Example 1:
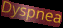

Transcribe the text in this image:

Dyspnea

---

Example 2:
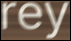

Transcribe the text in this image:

rey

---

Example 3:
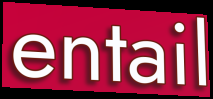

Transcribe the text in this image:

entail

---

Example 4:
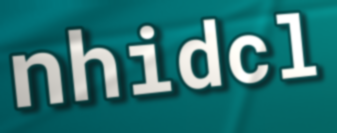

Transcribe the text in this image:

nhidcl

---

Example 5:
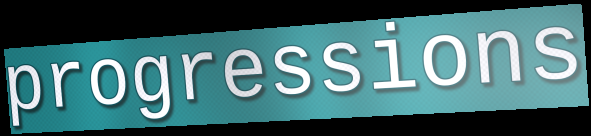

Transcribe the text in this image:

progressions